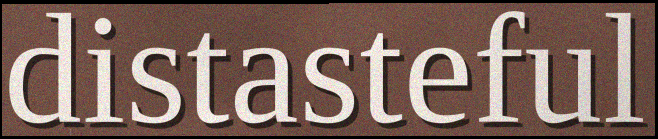
distasteful